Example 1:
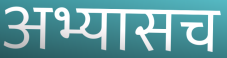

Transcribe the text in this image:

अभ्यासच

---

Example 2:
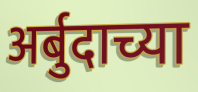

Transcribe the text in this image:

अर्बुदाच्या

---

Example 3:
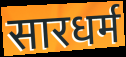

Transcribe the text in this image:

सारधर्म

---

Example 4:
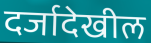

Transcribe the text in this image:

दर्जादेखील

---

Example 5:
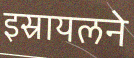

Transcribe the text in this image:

इस्रायलने